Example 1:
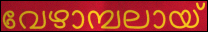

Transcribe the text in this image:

വേഴാമ്പലായ്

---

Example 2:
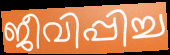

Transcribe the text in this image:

ജീവിപ്പിച്ച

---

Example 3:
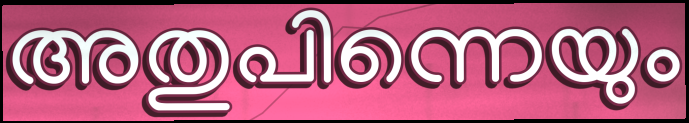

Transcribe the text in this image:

അതുപിന്നെയും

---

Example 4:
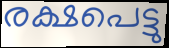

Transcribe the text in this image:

രക്ഷപെട്ടു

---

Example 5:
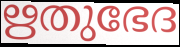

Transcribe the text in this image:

ഋതുഭേദ